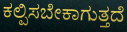
ಕಲ್ಪಿಸಬೇಕಾಗುತ್ತದೆ